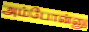
அம்போன்னு